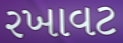
રખાવટ